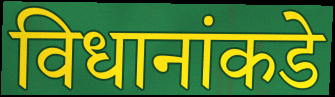
विधानांकडे